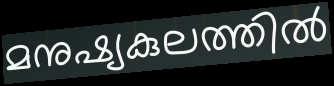
മനുഷ്യകുലത്തിൽ